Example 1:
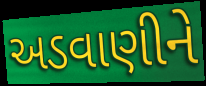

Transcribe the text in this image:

અડવાણીને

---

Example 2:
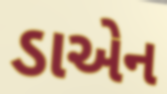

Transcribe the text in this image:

ડાએન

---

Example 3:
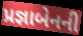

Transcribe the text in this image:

પ્રજ્ઞાબેનની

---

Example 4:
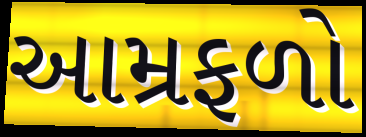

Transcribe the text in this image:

આમ્રફળો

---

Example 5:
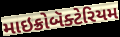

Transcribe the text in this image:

માઇક્રોબૅક્ટેરિયમ